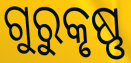
ଗୁରୁକୃଷ୍ଣ